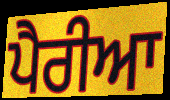
ਪੈਰੀਆ